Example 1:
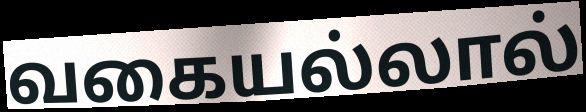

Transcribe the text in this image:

வகையல்லால்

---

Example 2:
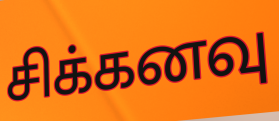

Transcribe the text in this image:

சிக்கனவு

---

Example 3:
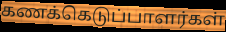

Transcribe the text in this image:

கணக்கெடுப்பாளர்கள்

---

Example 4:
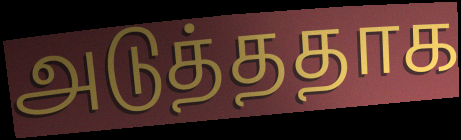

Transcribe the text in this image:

அடுத்ததாக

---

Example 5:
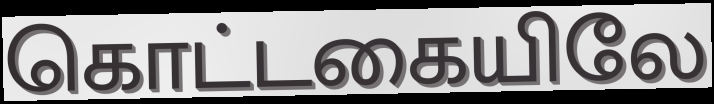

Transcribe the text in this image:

கொட்டகையிலே